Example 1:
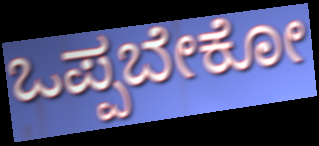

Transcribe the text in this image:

ಒಪ್ಪಬೇಕೋ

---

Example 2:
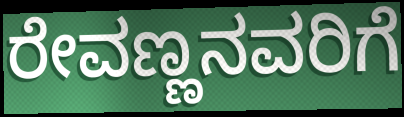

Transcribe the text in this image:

ರೇವಣ್ಣನವರಿಗೆ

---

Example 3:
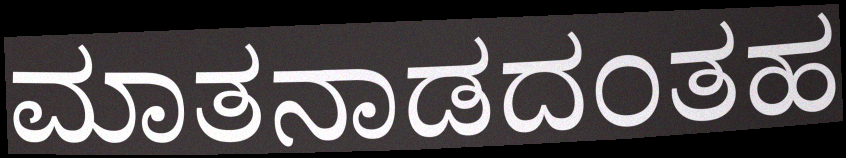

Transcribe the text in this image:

ಮಾತನಾಡದಂತಹ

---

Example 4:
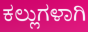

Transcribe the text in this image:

ಕಲ್ಲುಗಳಾಗಿ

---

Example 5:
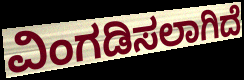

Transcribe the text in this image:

ವಿಂಗಡಿಸಲಾಗಿದೆ